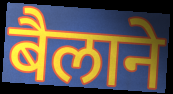
बैलाने